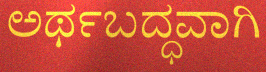
ಅರ್ಥಬದ್ಧವಾಗಿ